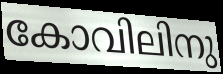
കോവിലിനു